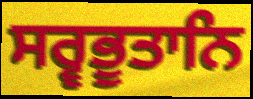
ਸਰ੍ਵਭੂਤਾਨਿ